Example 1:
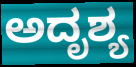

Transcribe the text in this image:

ಅದೃಶ್ಯ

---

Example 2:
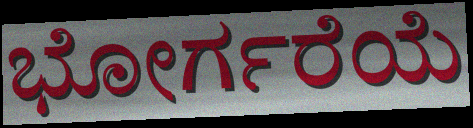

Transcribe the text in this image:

ಭೋರ್ಗರೆಯೆ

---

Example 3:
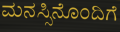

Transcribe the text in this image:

ಮನಸ್ಸಿನೊಂದಿಗೆ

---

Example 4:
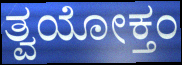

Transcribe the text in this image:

ತ್ವಯೋಕ್ತಂ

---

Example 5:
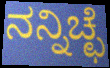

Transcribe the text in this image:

ನನ್ನಿಚ್ಛೆ